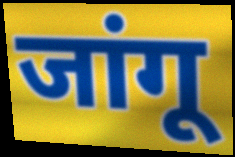
जांगू